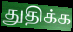
துதிக்க